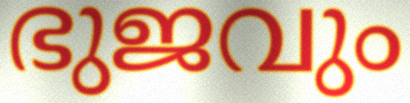
ഭുജവും